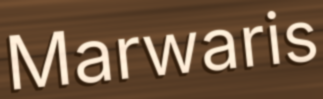
Marwaris